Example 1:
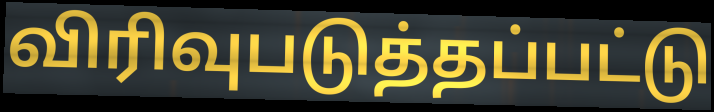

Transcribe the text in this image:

விரிவுபடுத்தப்பட்டு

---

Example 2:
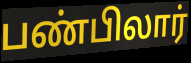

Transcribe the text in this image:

பண்பிலார்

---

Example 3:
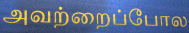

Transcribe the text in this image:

அவற்றைப்போல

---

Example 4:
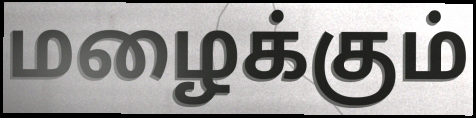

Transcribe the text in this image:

மழைக்கும்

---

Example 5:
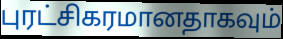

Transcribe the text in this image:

புரட்சிகரமானதாகவும்